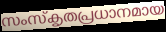
സംസ്‌കൃതപ്രധാനമായ